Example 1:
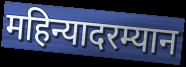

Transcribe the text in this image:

महिन्यादरम्यान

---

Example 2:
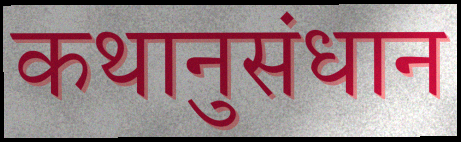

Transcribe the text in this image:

कथानुसंधान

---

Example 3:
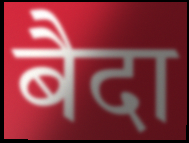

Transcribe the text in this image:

बैदा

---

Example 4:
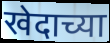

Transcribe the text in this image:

खेदाच्या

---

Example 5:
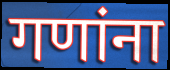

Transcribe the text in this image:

गणांना